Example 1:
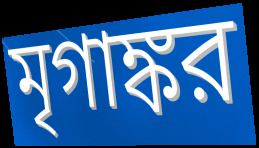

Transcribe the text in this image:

মৃগাঙ্কর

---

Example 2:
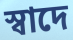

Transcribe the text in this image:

স্বাদে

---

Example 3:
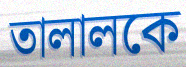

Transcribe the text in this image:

তালালকে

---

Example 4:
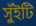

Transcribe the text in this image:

সুঁইটি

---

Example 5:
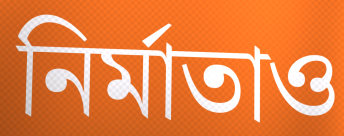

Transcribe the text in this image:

নির্মাতাও